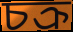
চক্ৰ